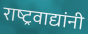
राष्ट्रवाद्यांनी